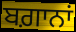
ਬਗ਼ਾਨਾਂ